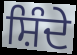
ਸ਼ਿੰਦੇ